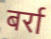
बर्रा